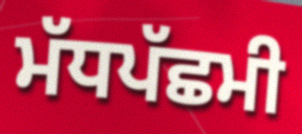
ਮੱਧਪੱਛਮੀ